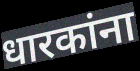
धारकांना